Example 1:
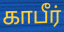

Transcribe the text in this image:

காபீர்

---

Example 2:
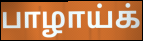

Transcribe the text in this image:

பாழாய்க்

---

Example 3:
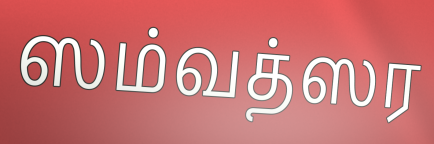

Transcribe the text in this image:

ஸம்வத்ஸர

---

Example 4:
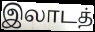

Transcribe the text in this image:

இலாடத்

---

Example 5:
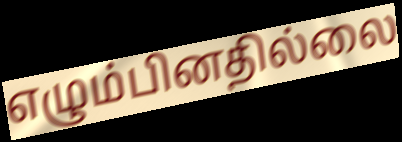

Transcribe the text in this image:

எழும்பினதில்லை